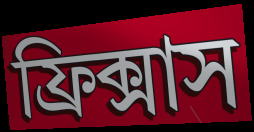
ফ্রিক্সাস